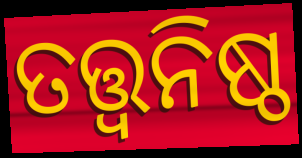
ତତ୍ତ୍ୱନିଷ୍ଠ